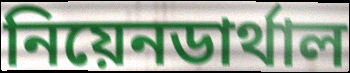
নিয়েনডার্থাল